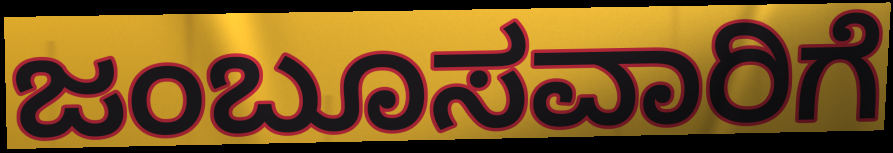
ಜಂಬೂಸವಾರಿಗೆ